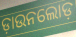
ଡ଼ାଉନଲୋଡ଼